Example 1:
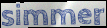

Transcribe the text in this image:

simmer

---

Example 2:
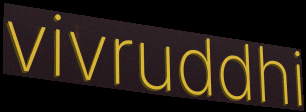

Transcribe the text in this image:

vivruddhi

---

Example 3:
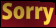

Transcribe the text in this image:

Sorry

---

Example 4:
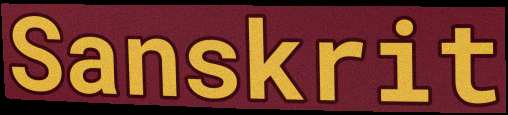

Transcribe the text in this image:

Sanskrit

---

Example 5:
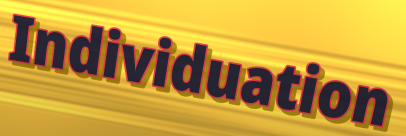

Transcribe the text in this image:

Individuation